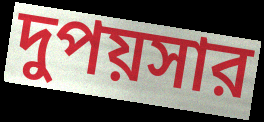
দুপয়সার